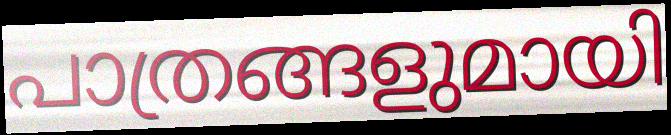
പാത്രങ്ങളുമായി